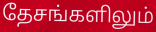
தேசங்களிலும்